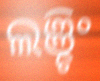
ଲଞ୍ଚିଂ